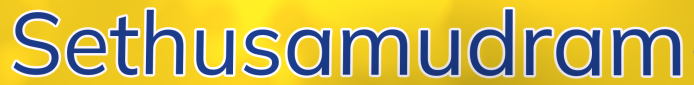
Sethusamudram